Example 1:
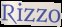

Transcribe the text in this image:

Rizzo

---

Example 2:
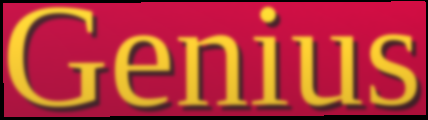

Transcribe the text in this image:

Genius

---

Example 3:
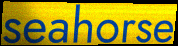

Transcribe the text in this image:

seahorse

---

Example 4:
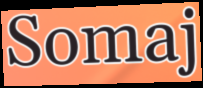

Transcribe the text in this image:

Somaj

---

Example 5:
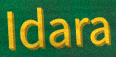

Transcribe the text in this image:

Idara